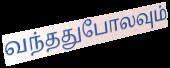
வந்ததுபோலவும்